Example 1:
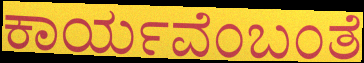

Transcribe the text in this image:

ಕಾರ್ಯವೆಂಬಂತೆ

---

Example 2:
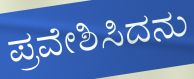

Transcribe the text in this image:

ಪ್ರವೇಶಿಸಿದನು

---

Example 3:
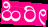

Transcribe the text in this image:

ಹಿರೀ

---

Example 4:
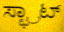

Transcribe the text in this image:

ಸ್ಟ್ರಾಟ್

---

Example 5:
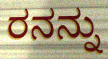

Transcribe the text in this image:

ರನನ್ನು